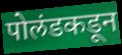
पोलंडकडून